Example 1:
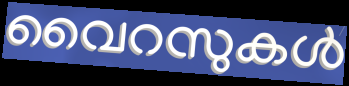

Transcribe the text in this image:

വൈറസുകൾ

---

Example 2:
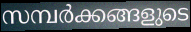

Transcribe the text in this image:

സമ്പർക്കങ്ങളുടെ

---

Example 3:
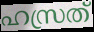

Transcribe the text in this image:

ഹസ്രത്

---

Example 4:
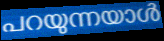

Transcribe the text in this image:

പറയുന്നയാൾ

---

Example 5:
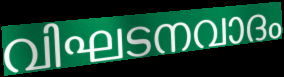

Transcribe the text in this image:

വിഘടനവാദം